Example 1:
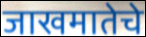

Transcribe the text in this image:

जाखमातेचे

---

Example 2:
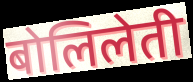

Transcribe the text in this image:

बोलिलेती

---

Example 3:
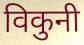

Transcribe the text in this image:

विकुनी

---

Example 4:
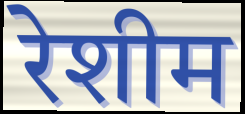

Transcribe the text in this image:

रेशीम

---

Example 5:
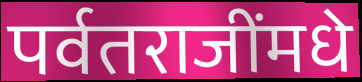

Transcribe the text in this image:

पर्वतराजींमधे